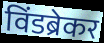
विंडब्रेकर